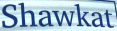
Shawkat